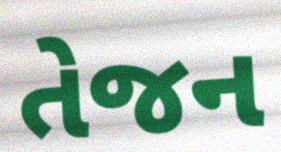
તેજન